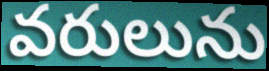
వరులును